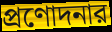
প্রণোদনার